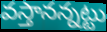
వస్తానన్నట్టు